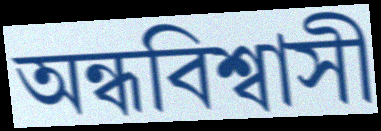
অন্ধবিশ্বাসী